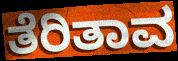
ತೆರಿತಾವ